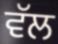
ਵੱਲ